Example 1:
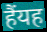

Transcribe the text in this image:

हैंयह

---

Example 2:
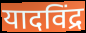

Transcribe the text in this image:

यादविंद्र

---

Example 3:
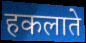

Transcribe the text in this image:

हकलाते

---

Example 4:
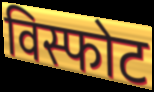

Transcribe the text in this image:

विस्फोट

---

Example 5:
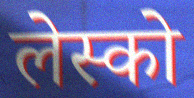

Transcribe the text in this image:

लेस्को